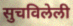
सुचविलेली